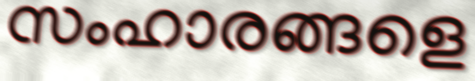
സംഹാരങ്ങളെ